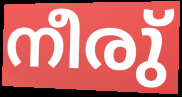
നീരു്